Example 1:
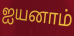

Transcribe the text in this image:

ஐயனாம்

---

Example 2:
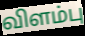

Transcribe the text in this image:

விளம்பு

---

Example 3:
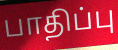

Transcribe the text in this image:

பாதிப்பு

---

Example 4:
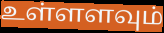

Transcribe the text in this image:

உள்ளளவும்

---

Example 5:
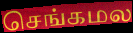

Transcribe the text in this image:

செங்கமல